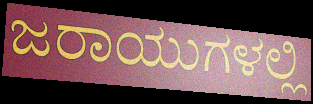
ಜರಾಯುಗಳಲ್ಲಿ